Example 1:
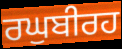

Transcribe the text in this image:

ਰਘੁਬੀਰਹ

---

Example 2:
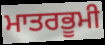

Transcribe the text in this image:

ਮਾਤਰਭੂਮੀ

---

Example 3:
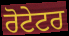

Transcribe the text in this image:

ਰੋਟੇਟਰ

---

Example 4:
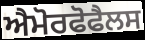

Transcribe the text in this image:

ਐਮੋਰਫੋਫੈਲਸ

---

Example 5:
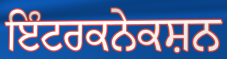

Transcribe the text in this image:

ਇੰਟਰਕਨੇਕਸ਼ਨ